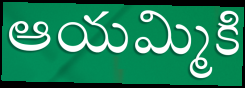
ఆయమ్మికి